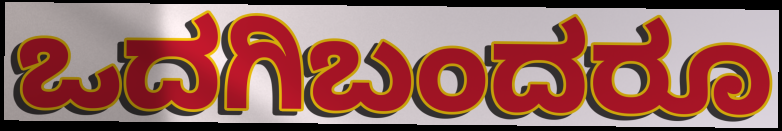
ಒದಗಿಬಂದರೂ